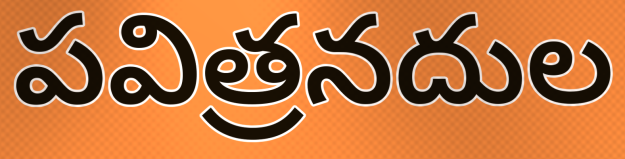
పవిత్రనదుల